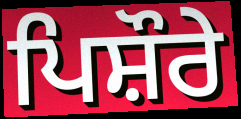
ਪਿਸ਼ੌਰੇ